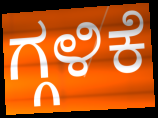
ಗ್ಗಳಿಕೆ